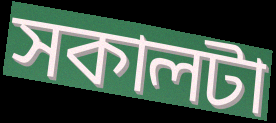
সকালটা